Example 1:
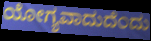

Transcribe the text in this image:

ಯೋಗ್ಯವಾದುದೆಂದು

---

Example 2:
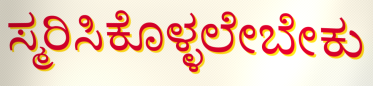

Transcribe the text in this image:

ಸ್ಮರಿಸಿಕೊಳ್ಳಲೇಬೇಕು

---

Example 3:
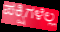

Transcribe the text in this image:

ಪಕ್ಷಿಗಳೆಲ್ಲ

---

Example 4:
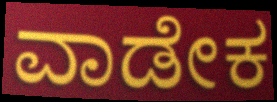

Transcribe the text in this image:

ವಾಡೇಕ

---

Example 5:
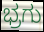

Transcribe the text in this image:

ಭ್ರಗು